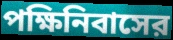
পক্ষিনিবাসের